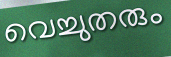
വെച്ചുതരും